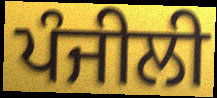
ਪੰਜੀਲੀ